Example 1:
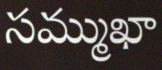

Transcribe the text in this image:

సమ్ముఖా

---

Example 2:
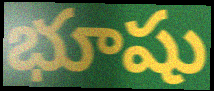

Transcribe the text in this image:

భూషు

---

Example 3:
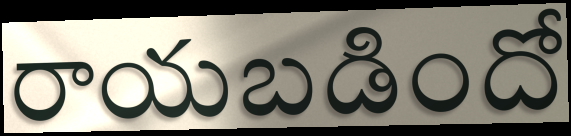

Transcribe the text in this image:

రాయబడిందో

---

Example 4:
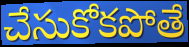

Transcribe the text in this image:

చేసుకోకపోతే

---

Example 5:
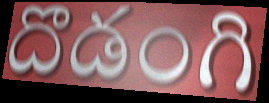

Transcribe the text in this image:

దొడంగి